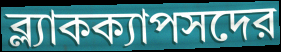
ব্ল্যাকক্যাপসদের